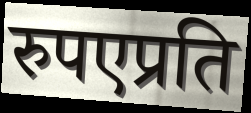
रुपएप्रति